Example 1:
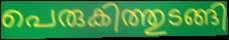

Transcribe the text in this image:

പെരുകിത്തുടങ്ങി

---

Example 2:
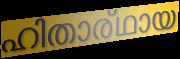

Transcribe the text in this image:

ഹിതാര്ഥായ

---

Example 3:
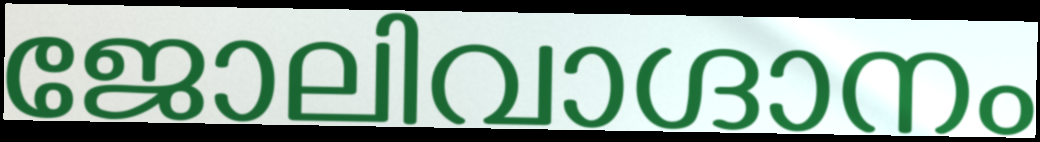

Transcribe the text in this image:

ജോലിവാഗ്ദാനം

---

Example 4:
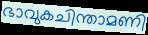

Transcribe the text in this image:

ഭാവുകചിന്താമണി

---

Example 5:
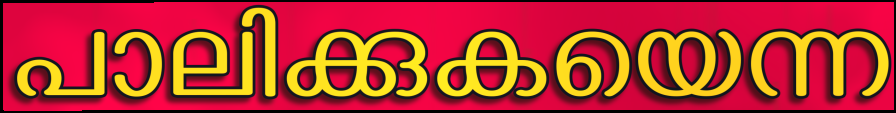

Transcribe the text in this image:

പാലിക്കുകയെന്ന